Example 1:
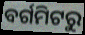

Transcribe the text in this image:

ବର୍ଗମିଟରୁ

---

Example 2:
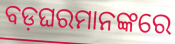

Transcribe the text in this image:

ବଡ଼ଘରମାନଙ୍କରେ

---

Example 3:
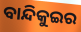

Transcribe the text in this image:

ବାନ୍ଦିକୁଇର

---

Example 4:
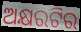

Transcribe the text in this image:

ଅକ୍ଷରଟିର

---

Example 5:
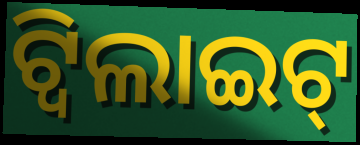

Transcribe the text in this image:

ଟ୍ୱିଲାଇଟ୍